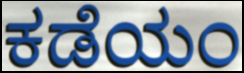
ಕಡೆಯಂ